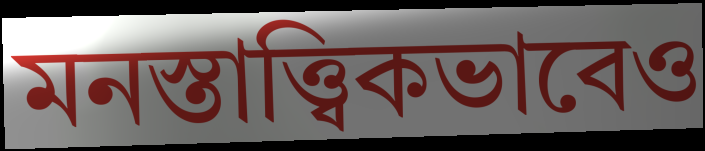
মনস্তাত্ত্বিকভাবেও